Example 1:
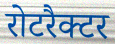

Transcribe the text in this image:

रोटरैक्टर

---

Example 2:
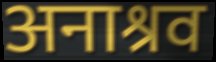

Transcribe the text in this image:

अनाश्रव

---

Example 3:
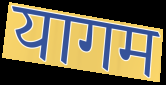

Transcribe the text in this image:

यागम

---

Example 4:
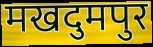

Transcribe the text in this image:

मखदुमपुर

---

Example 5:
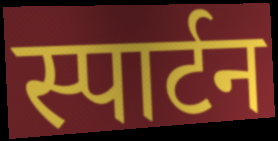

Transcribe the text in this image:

स्पार्टन